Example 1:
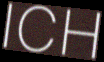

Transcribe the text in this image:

ICH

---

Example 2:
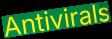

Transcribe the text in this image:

Antivirals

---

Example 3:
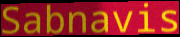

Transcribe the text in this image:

Sabnavis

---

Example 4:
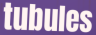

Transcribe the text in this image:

tubules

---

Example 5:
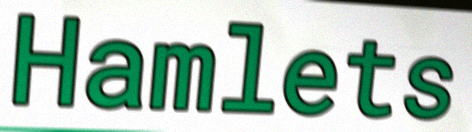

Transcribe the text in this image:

Hamlets